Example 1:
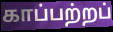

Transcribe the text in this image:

காப்பற்றப்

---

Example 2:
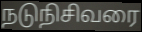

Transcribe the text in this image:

நடுநிசிவரை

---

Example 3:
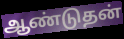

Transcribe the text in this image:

ஆண்டுதன்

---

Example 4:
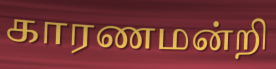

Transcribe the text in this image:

காரணமன்றி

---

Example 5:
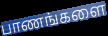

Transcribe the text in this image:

பாணங்களை